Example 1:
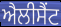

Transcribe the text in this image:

ਐਲੀਸੈਂਟ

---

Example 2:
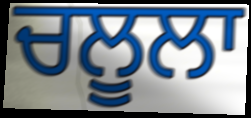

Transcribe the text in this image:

ਚਲੂਲਾ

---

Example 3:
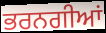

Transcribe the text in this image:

ਭਰਨਗੀਆਂ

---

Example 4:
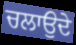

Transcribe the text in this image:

ਚਲਾਉਦੇ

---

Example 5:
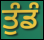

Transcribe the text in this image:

ਤੁੰਡੰ